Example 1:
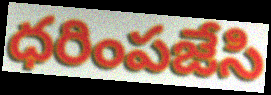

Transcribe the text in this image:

ధరింపజేసి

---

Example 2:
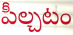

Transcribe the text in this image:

పీల్చటం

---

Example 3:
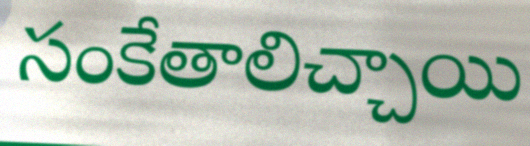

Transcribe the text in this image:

సంకేతాలిచ్చాయి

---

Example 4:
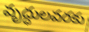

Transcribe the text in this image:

వృద్ధులవరకు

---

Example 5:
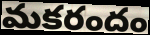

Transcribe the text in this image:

మకరందం